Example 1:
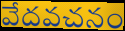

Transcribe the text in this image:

వేదవచనం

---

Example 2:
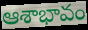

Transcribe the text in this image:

ఆశాభావం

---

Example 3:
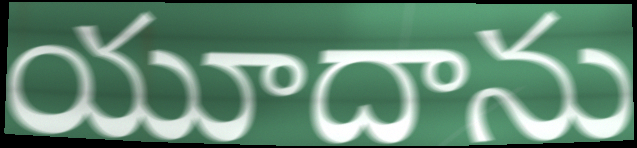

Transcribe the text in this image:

యూదాను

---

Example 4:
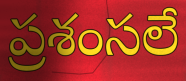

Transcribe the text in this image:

ప్రశంసలే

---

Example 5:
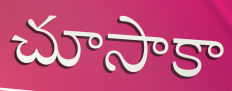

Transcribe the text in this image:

చూసాకా